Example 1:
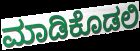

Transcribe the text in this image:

ಮಾಡಿಕೊಡಲಿ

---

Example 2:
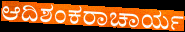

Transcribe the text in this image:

ಆದಿಶಂಕರಾಚಾರ್ಯ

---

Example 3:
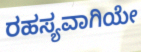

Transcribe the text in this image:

ರಹಸ್ಯವಾಗಿಯೇ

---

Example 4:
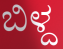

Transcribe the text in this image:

ಬಿಳ್ದ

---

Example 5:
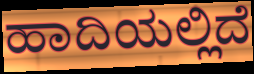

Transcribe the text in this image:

ಹಾದಿಯಲ್ಲಿದೆ